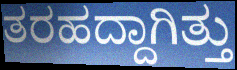
ತರಹದ್ದಾಗಿತ್ತು